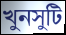
খুনসুটি